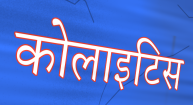
कोलाइटिस